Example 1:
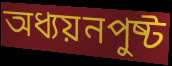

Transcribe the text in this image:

অধ্যয়নপুষ্ট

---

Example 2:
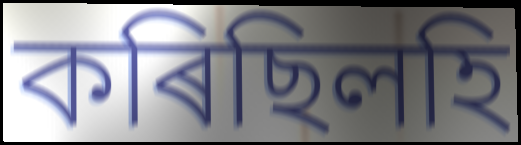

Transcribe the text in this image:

কৰিছিলহি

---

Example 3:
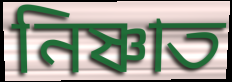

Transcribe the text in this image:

নিষ্ণাত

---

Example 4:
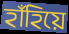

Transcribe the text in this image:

হাঁহিয়ে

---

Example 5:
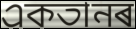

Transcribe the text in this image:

একতানৰ